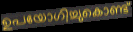
ഉപയോഗിച്ചുകൊണ്ട്